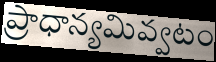
ప్రాధాన్యమివ్వటం